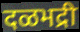
दळभद्री